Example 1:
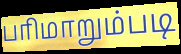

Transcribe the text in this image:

பரிமாறும்படி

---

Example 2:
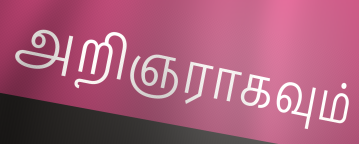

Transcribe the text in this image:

அறிஞராகவும்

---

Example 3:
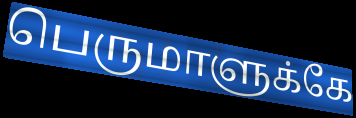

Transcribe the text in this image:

பெருமாளுக்கே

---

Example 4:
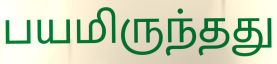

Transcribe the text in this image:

பயமிருந்தது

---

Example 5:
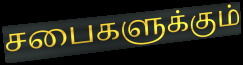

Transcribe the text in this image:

சபைகளுக்கும்